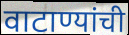
वाटाण्यांची